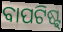
ବାପଟିଷ୍ଟ୍